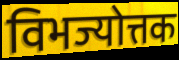
विभज्योत्तक